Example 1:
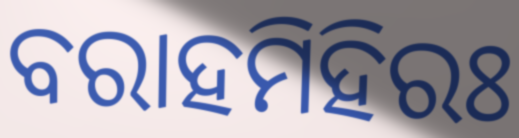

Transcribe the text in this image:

ବରାହମିହିରଃ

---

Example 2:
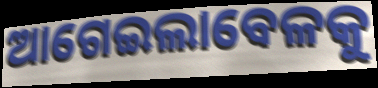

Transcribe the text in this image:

ଆଗେଇଲାବେଳକୁ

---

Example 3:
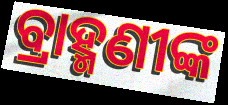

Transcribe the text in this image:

ବ୍ରାହ୍ମଣୀଙ୍କ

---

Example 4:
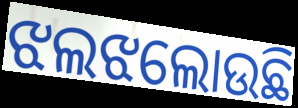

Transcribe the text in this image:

ଝଲଝଲୋଉଛି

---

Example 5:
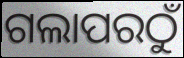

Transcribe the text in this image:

ଗଲାପରଠୁଁ